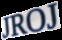
JROJ